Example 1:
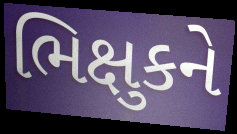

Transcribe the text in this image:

ભિક્ષુકને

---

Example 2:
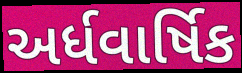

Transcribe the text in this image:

અર્ધવાર્ષિક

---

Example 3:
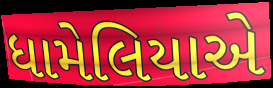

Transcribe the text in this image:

ધામેલિયાએ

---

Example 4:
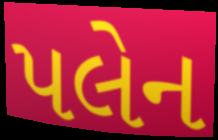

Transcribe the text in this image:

પલેન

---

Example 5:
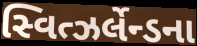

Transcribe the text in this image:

સ્વિત્ઝર્લેન્ડના